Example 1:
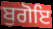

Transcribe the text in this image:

ਬੁਗੋਇ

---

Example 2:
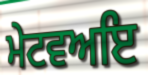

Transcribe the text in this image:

ਮੇਟਵਅਇ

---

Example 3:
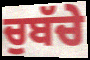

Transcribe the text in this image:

ਚੁਬੱਚੇ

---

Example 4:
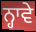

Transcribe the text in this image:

ਨ੍ਹਾਵੇ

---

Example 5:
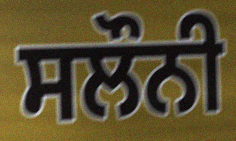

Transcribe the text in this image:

ਸਲੌਨੀ